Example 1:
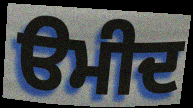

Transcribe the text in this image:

ੳਮੀਦ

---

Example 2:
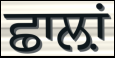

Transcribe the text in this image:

ਛਾਲ਼ਾਂ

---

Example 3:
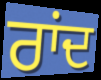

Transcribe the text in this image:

ਰਾਂਦ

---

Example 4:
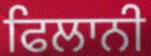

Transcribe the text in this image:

ਫਿਲਾਨੀ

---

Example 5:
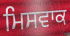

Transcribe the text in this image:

ਮਿਸਵਾਕ